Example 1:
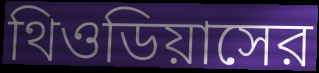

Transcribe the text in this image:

থিওডিয়াসের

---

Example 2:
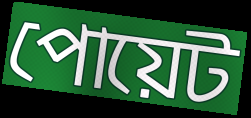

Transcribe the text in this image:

পোয়েট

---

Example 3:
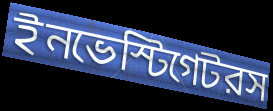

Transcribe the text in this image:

ইনভেস্টিগেটরস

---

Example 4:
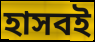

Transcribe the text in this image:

হাসবই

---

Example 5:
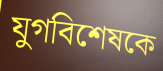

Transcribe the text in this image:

যুগবিশেষকে